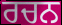
ਰਚਨ